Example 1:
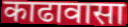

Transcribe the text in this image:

काढावासा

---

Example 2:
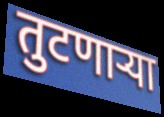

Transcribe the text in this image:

तुटणार्‍या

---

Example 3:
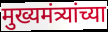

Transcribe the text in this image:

मुख्यमंत्र्यांच्या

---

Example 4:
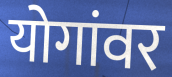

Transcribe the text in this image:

योगांवर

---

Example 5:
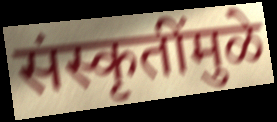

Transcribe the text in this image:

संस्कृतींमुळे